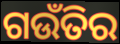
ଗଉଁତିର